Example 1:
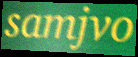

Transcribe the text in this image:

samjvo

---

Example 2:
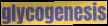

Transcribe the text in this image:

glycogenesis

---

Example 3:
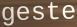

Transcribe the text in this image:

geste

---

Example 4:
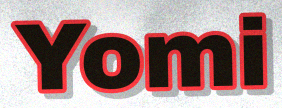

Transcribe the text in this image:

Yomi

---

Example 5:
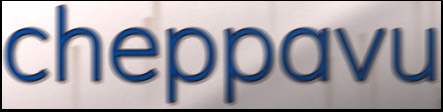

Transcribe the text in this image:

cheppavu